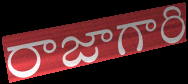
రాజాగారి